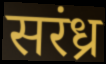
सरंध्र